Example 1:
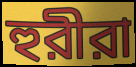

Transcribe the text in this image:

হুরীরা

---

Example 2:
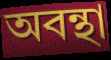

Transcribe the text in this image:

অবন্থা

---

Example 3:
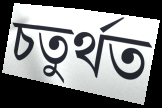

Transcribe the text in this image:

চতুর্থত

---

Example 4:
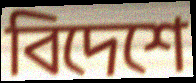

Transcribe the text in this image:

বিদেশে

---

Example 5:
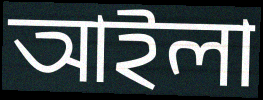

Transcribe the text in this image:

আইলা